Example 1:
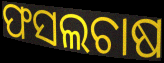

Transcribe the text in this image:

ଫସଲଚାଷ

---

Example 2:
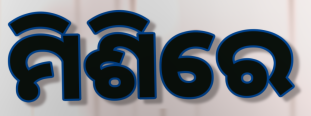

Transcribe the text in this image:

ମିଶିରେ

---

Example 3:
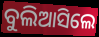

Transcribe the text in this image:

ବୁଲିଆସିଲେ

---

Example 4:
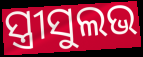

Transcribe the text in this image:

ସ୍ତ୍ରୀସୁଲଭ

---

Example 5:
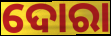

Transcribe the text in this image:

ଦୋରା